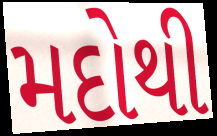
મદોથી